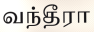
வந்தீரா